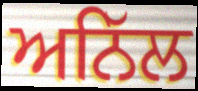
ਅਨਿੱਲ